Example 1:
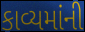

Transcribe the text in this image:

કાવ્યમાંની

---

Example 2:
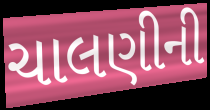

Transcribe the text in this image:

ચાલણીની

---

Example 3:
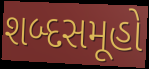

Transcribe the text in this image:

શબ્દસમૂહો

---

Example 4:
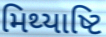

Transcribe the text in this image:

મિથ્યાષ્ટિ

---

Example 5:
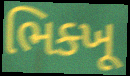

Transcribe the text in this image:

ભિક્ખૂ